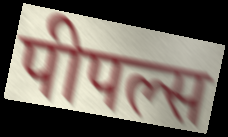
पीपल्स